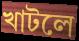
খাটলে